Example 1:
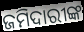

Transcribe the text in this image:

ଜମିଦାରୀଙ୍କ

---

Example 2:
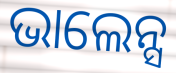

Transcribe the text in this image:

ଭାଲେନ୍ସ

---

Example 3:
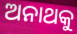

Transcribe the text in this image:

ଅନାଥକୁ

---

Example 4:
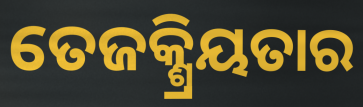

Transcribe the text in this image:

ତେଜକ୍ଶ୍ରିୟତାର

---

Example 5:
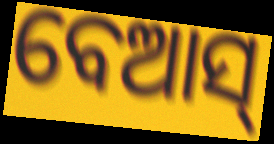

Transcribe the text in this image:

ବେଆସ୍